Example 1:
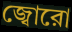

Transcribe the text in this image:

জ্বোরো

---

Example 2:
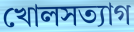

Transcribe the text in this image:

খোলসত্যাগ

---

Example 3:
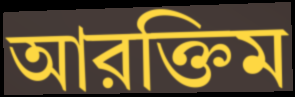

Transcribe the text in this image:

আরক্তিম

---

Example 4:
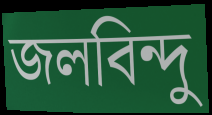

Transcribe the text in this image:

জলবিন্দু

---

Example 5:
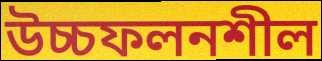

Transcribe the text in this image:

উচ্চফলনশীল